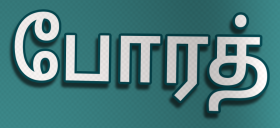
போரத்